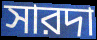
সারদা